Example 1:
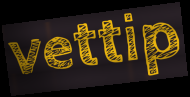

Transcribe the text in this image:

vettip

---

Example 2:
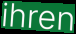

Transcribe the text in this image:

ihren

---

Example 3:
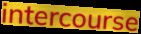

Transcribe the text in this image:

intercourse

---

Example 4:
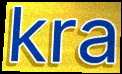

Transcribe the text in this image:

kra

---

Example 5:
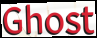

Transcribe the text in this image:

Ghost